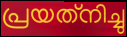
പ്രയത്‌നിച്ചു